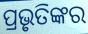
ପ୍ରଭୃତିଙ୍କର